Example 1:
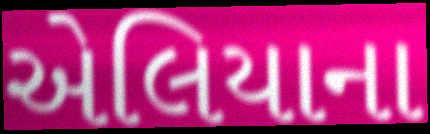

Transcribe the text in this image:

એલિયાના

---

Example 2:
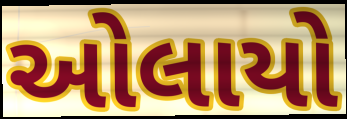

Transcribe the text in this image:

ઓલાયો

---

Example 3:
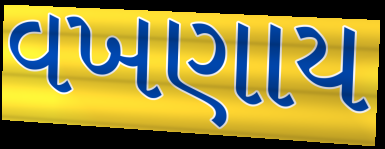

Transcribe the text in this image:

વખણાય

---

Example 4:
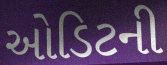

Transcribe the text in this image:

ઓડિટની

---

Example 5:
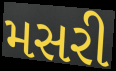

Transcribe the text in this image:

મસરી